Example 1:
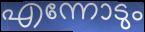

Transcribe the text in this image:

എന്നോടും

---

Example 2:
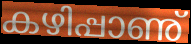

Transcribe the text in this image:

കഴിപ്പാണു്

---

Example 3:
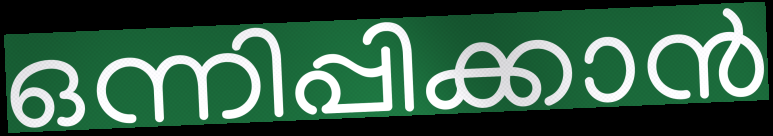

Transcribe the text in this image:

ഒന്നിപ്പിക്കാൻ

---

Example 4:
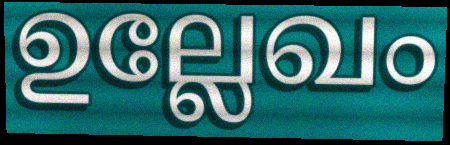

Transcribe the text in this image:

ഉല്ലേഖം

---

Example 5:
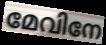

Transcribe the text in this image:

മേവിനേ